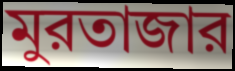
মুরতাজার